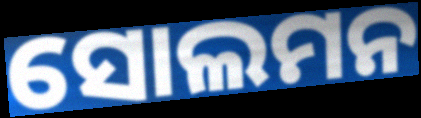
ସୋଲମନ